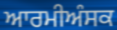
ਆਰਮੀਅੰਸਕ